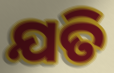
ଯତି